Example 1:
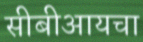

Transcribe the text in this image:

सीबीआयचा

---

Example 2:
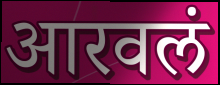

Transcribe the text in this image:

आरवलं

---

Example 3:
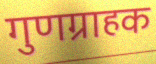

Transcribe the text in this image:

गुणग्राहक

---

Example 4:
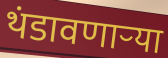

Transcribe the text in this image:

थंडावणाऱ्या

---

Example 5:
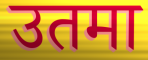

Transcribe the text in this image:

उतमा